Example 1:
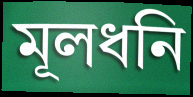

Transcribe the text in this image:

মূলধনি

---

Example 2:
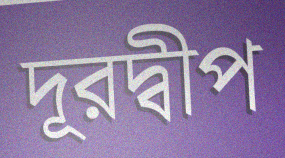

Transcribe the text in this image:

দূরদ্বীপ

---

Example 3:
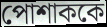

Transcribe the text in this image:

পোশাককে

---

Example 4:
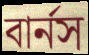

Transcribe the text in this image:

বার্নস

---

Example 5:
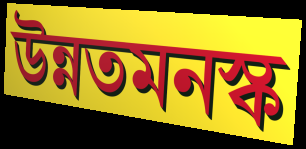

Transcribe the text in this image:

উন্নতমনস্ক